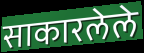
साकारलेले